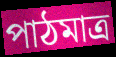
পাঠমাত্র